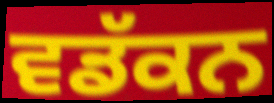
ਵਡੱਕਨ